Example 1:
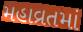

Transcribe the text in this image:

મહાવ્રતમાં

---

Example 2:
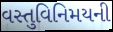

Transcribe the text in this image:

વસ્તુવિનિમયની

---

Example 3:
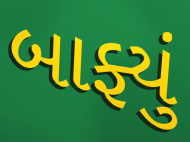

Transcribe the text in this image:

બાફ્યું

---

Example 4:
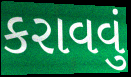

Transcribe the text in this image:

કરાવવું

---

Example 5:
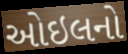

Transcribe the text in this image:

ઓઇલનો